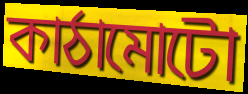
কাঠামোটো